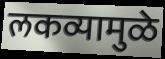
लकव्यामुळे